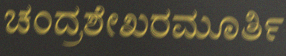
ಚಂದ್ರಶೇಖರಮೂರ್ತಿ